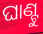
ଘାଣ୍ଟୁ